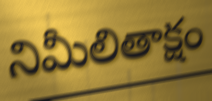
నిమీలితాక్షం